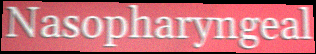
Nasopharyngeal